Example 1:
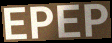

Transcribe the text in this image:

EPEP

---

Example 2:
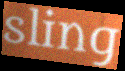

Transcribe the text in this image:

sling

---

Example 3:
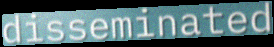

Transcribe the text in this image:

disseminated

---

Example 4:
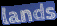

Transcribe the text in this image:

lands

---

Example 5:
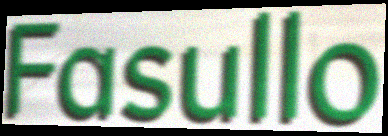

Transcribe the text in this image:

Fasullo